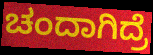
ಚಂದಾಗಿದ್ರೆ